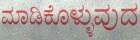
ಮಾಡಿಕೊಳ್ಳುವುದ